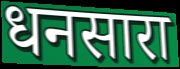
धनसारा